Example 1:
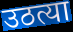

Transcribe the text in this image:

उठत्या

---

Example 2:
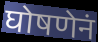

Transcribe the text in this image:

घोषणेनं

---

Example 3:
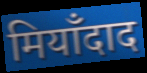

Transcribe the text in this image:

मियाँदाद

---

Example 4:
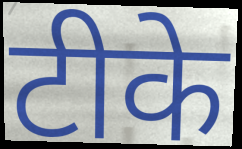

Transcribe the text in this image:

टीके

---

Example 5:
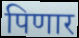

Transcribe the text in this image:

पिणार